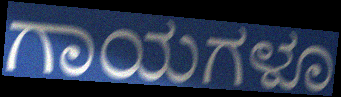
ಗಾಯಗಳೂ